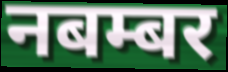
नबम्बर